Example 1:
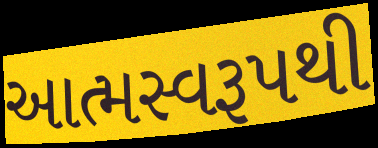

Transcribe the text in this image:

આત્મસ્વરૂપથી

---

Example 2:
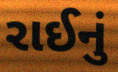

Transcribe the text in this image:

રાઈનું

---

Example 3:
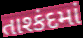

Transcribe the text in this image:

તાશ્કંદમાં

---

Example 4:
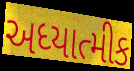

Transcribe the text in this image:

અધ્યાત્મીક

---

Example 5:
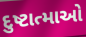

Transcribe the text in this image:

દુષ્ટાત્માઓ